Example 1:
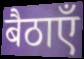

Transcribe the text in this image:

बैठाएँ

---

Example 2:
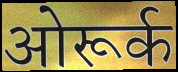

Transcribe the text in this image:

ओरूर्क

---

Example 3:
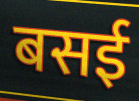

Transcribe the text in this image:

बसई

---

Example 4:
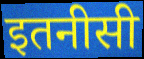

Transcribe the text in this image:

इतनीसी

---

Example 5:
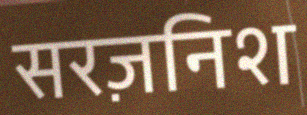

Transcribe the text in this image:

सरज़निश